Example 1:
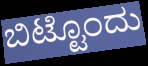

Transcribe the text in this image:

ಬಿಟ್ಟೊಂದು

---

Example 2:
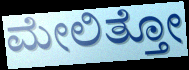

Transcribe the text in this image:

ಮೇಲಿತ್ತೋ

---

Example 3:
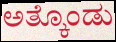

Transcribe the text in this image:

ಅತ್ಕೊಂಡು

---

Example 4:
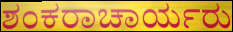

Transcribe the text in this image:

ಶಂಕರಾಚಾರ್ಯರು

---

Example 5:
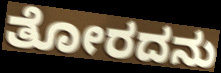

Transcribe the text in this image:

ತೋರದನು